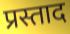
प्रस्ताद